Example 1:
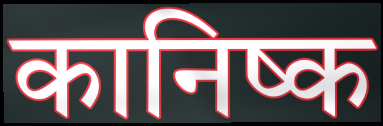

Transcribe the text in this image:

कानिष्क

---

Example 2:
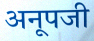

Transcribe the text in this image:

अनूपजी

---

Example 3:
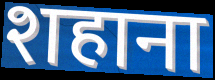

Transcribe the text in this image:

शहाना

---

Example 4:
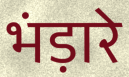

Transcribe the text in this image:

भंड़ारे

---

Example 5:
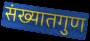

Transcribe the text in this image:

संख्यातगुण